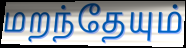
மறந்தேயும்